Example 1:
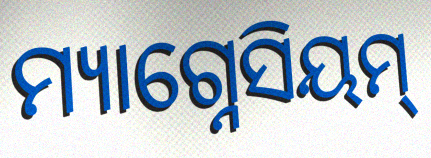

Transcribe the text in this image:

ମ୍ୟାଗ୍ନେସିୟମ୍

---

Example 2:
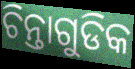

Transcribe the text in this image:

ଚିନ୍ତାଗୁଡିକ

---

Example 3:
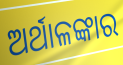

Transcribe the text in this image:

ଅର୍ଥାଳଙ୍କାର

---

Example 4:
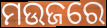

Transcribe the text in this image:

ମଉଜରେ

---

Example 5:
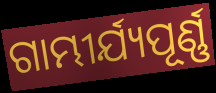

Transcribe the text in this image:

ଗାମ୍ଭୀର୍ଯ୍ୟପୂର୍ଣ୍ଣ